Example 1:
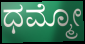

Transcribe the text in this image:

ಧಮ್ಮೋ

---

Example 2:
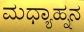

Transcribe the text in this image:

ಮಧ್ಯಾಹ್ನನ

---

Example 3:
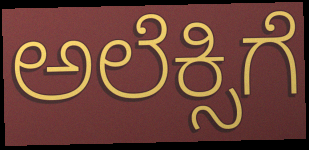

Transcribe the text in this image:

ಅಲೆಕ್ಸಿಗೆ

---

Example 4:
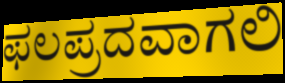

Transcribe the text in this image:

ಫಲಪ್ರದವಾಗಲಿ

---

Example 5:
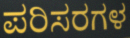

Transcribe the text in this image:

ಪರಿಸರಗಳ